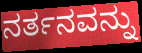
ನರ್ತನವನ್ನು